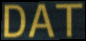
DAT